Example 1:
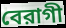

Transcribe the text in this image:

বেরাগী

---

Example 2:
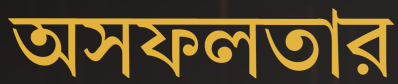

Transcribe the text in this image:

অসফলতার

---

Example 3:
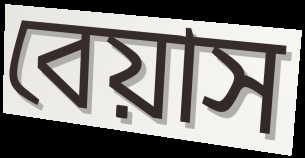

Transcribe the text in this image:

বেয়াস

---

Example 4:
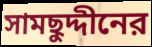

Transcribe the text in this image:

সামছুদ্দীনের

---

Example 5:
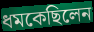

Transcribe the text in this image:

ধমকেছিলেন